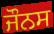
ਜੌਨਸ